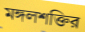
মঙ্গলশক্তির